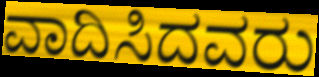
ವಾದಿಸಿದವರು